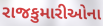
રાજકુમારીઓના